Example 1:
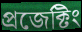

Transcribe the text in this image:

প্রজেক্টিং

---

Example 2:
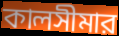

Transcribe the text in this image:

কালসীমার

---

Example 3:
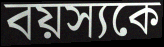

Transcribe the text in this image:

বয়স্যকে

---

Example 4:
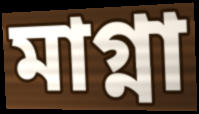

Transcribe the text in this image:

মাগ্না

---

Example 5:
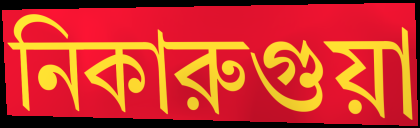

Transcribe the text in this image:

নিকারুগুয়া